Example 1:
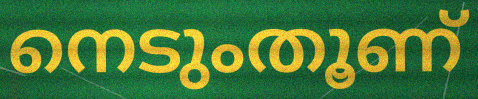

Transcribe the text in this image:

നെടുംതൂണ്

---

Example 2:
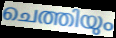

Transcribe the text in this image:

ചെത്തിയും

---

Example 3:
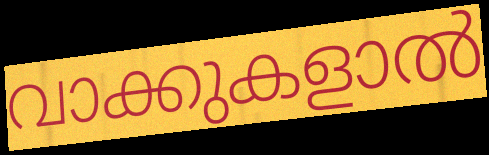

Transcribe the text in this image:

വാക്കുകളാൽ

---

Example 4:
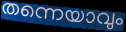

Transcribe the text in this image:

തന്നെയാവും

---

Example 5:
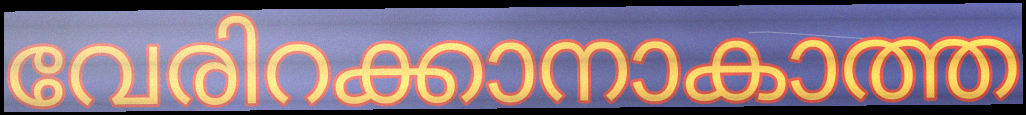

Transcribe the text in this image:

വേരിറക്കാനാകാത്ത